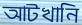
আটখানি